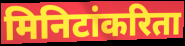
मिनिटांकरिता